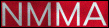
NMMA